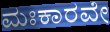
ಮಃಕಾರವೇ